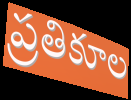
ప్రతికూల